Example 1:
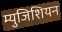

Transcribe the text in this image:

म्‍युजिशियन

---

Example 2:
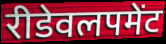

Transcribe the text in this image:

रीडेवलपमेंट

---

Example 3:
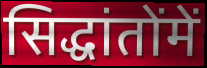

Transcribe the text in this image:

सिद्धांतोंमें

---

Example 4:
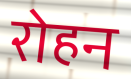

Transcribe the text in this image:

रोहन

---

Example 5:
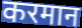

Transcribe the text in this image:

करमान